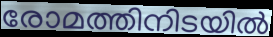
രോമത്തിനിടയിൽ